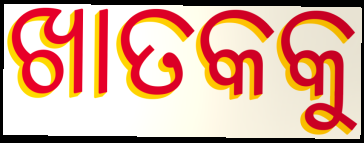
ଖାତକକୁ